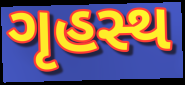
ગૃહસ્થ